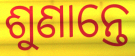
ଶୁଣାନ୍ତେ